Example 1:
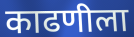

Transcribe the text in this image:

काढणीला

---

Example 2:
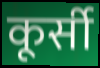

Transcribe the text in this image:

कूर्सी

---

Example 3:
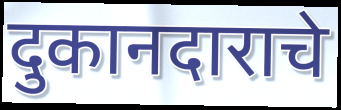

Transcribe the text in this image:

दुकानदाराचे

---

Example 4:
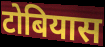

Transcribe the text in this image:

टोबियास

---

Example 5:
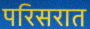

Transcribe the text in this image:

परिसरात